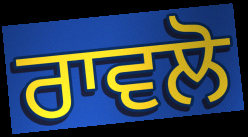
ਰਾਵਲੋ